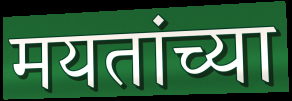
मयतांच्या